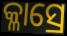
କ୍ଳାସ୍ରେ